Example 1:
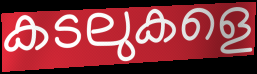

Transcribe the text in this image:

കടലുകളെ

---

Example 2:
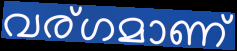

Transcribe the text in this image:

വര്ഗമാണ്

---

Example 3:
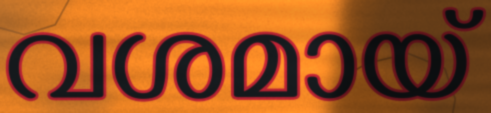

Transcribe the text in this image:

വശമായ്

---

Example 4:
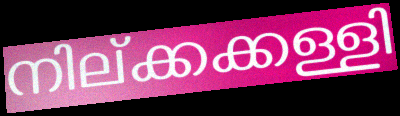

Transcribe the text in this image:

നില്ക്കക്കള്ളി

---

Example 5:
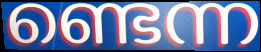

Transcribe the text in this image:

ണ്ടെന്ന